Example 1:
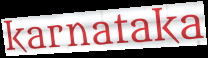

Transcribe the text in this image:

karnataka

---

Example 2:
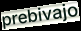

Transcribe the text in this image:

prebivajo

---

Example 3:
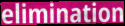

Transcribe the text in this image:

elimination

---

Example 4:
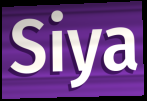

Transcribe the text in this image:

Siya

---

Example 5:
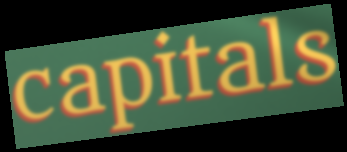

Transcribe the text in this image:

capitals